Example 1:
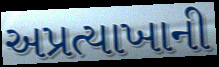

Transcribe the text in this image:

અપ્રત્યાખાની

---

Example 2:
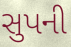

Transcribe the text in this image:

સુપની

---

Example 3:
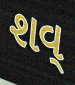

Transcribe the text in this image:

શવ્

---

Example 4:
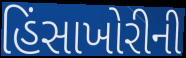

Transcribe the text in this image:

હિંસાખોરીની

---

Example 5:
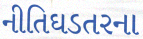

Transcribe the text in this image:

નીતિઘડતરના